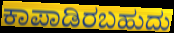
ಕಾಪಾಡಿರಬಹುದು